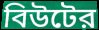
বিউটের